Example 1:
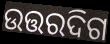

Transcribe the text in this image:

ଉତ୍ତରଦିଗ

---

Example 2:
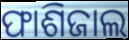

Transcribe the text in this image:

ଫାଶିଜାଲ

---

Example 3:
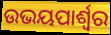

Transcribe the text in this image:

ଉଭୟପାର୍ଶ୍ୱର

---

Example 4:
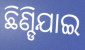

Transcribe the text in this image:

ଛିଣ୍ଡିଯାଇ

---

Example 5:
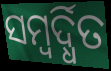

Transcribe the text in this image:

ସମ୍ବର୍ଦ୍ଧିତ